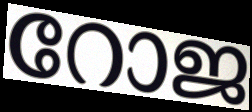
റോജ